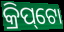
କ୍ରିପ୍‌ଟୋ